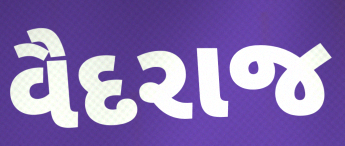
વૈદરાજ